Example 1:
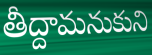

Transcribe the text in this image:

తీద్దామనుకుని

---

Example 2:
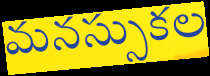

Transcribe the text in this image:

మనస్సుకల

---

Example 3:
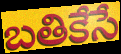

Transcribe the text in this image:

బతికేసే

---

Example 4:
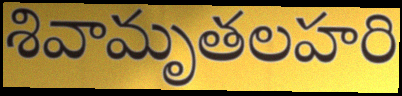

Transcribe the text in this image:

శివామృతలహరి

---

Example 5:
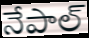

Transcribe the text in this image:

నేపాల్